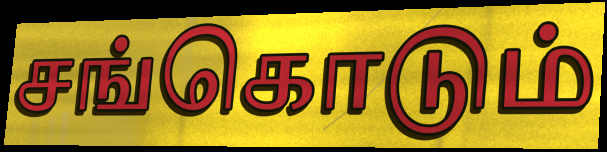
சங்கொடும்